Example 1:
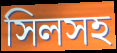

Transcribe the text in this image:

সিলসহ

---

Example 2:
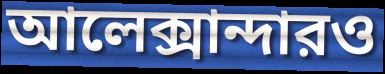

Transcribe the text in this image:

আলেক্সান্দারও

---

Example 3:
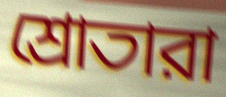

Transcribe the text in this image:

শ্রোতারা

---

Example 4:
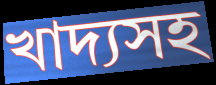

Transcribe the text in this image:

খাদ্যসহ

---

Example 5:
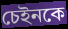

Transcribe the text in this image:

চেইনকে